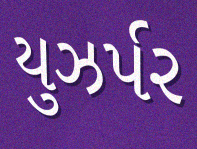
યુઝર્પર